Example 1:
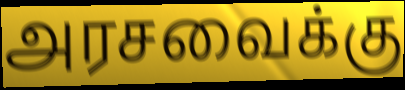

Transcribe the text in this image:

அரசவைக்கு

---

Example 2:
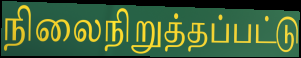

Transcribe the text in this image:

நிலைநிறுத்தப்பட்டு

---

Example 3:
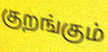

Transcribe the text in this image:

குறங்கும்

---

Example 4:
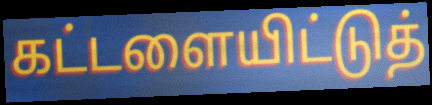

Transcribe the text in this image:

கட்டளையிட்டுத்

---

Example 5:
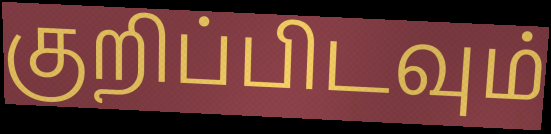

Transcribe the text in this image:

குறிப்பிடவும்